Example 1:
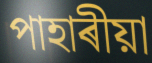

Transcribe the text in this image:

পাহাৰীয়া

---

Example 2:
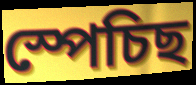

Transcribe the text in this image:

স্পেচিছ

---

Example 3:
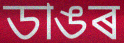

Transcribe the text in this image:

ডাঙৰ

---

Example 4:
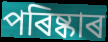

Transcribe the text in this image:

পৰিষ্কাৰ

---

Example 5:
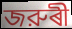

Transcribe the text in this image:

জৰুৰী